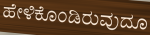
ಹೇಳಿಕೊಂಡಿರುವುದೂ